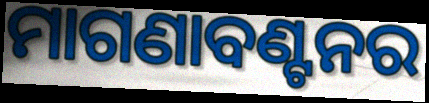
ମାଗଣାବଣ୍ଟନର